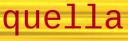
quella